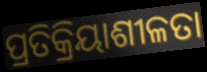
ପ୍ରତିକ୍ରିୟାଶୀଳତା